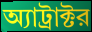
অ্যাট্রাক্টর